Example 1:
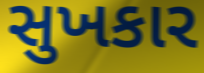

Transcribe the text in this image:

સુખકાર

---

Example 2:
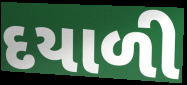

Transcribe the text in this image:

દયાળી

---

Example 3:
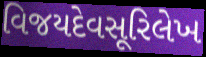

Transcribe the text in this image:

વિજયદેવસૂરિલેખ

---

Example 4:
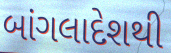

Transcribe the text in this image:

બાંગલાદેશથી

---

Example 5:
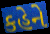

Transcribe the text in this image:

કહેને